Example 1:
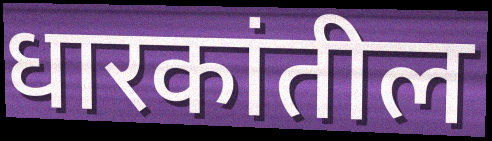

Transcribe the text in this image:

धारकांतील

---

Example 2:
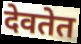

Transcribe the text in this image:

देवतेत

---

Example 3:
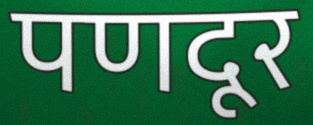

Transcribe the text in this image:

पणदूर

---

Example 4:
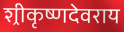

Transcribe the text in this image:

श्रीकृष्णदेवराय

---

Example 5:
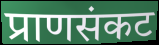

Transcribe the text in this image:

प्राणसंकट